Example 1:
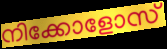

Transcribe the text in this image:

നിക്കോളോസ്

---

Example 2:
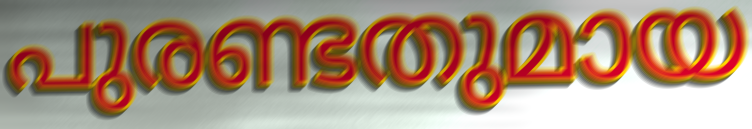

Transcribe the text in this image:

പുരണ്ടതുമായ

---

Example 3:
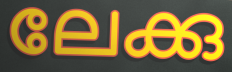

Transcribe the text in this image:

ലേക്കു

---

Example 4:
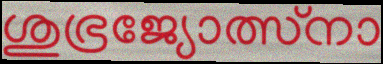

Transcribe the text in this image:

ശുഭ്രജ്യോത്സ്നാ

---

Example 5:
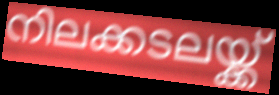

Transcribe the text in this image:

നിലക്കടലയ്ക്ക്